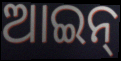
ଆଇନ୍